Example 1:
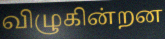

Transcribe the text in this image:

விழுகின்றன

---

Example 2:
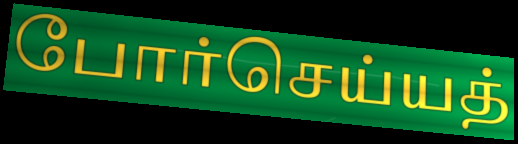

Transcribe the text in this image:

போர்செய்யத்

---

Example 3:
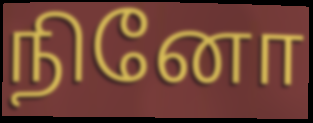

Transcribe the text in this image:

நினோ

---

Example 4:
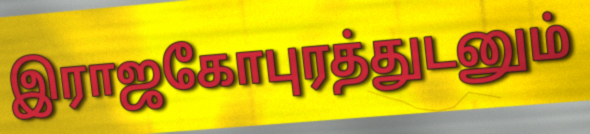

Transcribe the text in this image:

இராஜகோபுரத்துடனும்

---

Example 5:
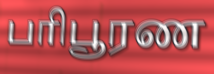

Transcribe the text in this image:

பரிபூரண